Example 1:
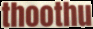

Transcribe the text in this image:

thoothu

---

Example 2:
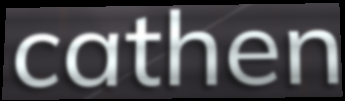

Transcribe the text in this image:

cathen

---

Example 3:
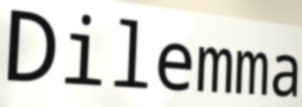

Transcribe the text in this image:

Dilemma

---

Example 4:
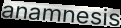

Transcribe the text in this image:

anamnesis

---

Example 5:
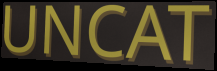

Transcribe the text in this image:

UNCAT